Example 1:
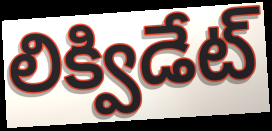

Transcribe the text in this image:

లిక్విడేట్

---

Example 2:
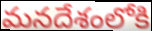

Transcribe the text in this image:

మనదేశంలోకి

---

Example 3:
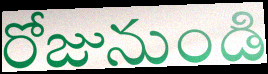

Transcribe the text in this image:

రోజునుండి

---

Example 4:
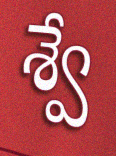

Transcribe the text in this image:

శ్వే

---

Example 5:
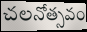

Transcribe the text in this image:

చలనోత్సవం